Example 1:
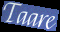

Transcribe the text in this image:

Taare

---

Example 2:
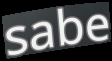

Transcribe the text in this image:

sabe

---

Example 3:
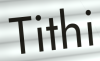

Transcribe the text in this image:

Tithi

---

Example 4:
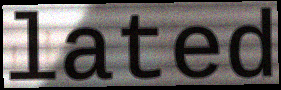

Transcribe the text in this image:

lated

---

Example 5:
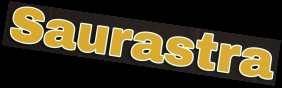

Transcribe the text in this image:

Saurastra